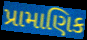
પ્રામાણિક